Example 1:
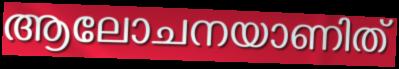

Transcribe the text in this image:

ആലോചനയാണിത്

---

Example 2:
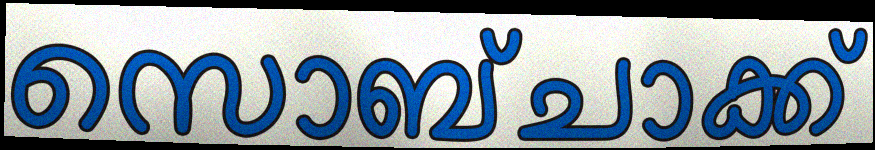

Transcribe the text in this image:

സൊബ്ചാക്ക്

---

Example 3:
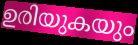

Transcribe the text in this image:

ഉരിയുകയും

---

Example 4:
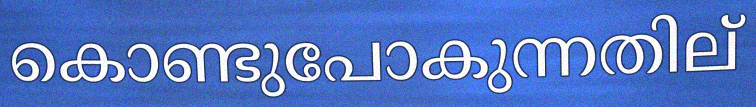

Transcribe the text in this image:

കൊണ്ടുപോകുന്നതില്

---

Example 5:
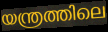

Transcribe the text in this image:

യന്ത്രത്തിലെ